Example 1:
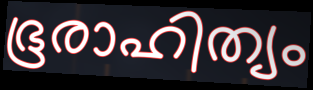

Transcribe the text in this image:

ഭൂരാഹിത്യം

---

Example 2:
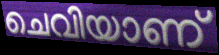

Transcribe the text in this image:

ചെവിയാണ്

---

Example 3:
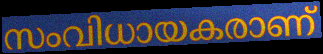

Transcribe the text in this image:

സംവിധായകരാണ്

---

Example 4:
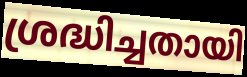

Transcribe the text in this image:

ശ്രദ്ധിച്ചതായി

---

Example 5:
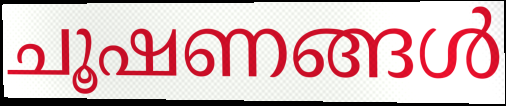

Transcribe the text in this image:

ചൂഷണങ്ങൾ